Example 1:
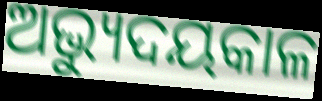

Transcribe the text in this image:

ଅଭ୍ୟୁଦୟକାଳ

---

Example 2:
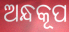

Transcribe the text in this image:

ଅନ୍ଧକୂପ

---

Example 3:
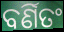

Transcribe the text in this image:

ବର୍ଣିତଂ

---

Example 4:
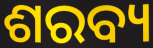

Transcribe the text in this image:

ଶରବ୍ୟ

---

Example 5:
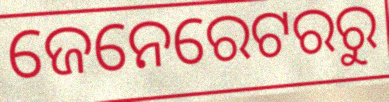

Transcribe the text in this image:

ଜେନେରେଟରରୁ